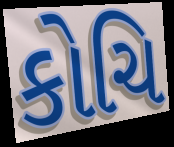
કોચિ